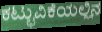
ಕಟ್ಟುವಿಕೆಯಲ್ಲಿನ